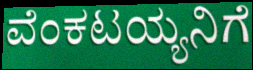
ವೆಂಕಟಯ್ಯನಿಗೆ